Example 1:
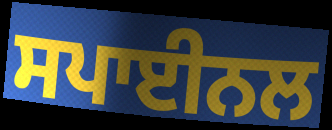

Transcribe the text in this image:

ਸਪਾਈਨਲ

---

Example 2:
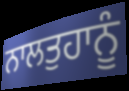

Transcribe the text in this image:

ਨਾਲਤੁਹਾਨੂੰ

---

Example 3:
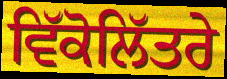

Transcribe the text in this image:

ਵਿੱਕੋਲਿੱਤਰੇ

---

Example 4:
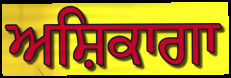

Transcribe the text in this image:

ਅਸ਼ਿਕਾਗਾ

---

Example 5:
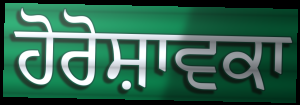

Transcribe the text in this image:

ਹੋਰੋਸ਼ਾਵਕਾ